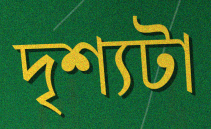
দৃশ্যটা